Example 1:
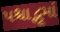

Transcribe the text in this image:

પશ્ચાદ્ભૂમાં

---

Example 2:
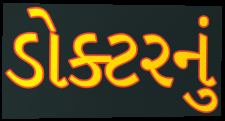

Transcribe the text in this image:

ડોક્ટરનું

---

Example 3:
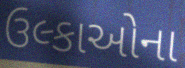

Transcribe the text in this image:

ઉલ્કાઓના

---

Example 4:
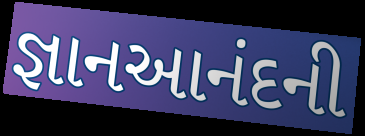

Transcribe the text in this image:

જ્ઞાનઆનંદની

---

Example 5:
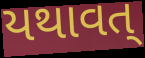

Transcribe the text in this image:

યથાવત્